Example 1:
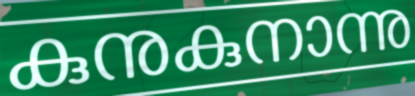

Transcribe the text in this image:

കുനുകുനാന്നു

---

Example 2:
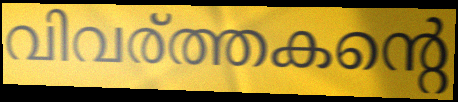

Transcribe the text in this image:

വിവര്ത്തകന്റെ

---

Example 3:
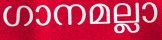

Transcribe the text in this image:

ഗാനമല്ലാ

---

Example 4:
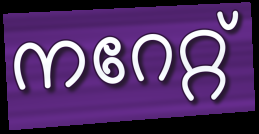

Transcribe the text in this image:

നറേറ്റ്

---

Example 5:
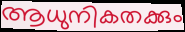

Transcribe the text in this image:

ആധുനികതക്കും